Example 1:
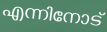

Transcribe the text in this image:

എന്നിനോട്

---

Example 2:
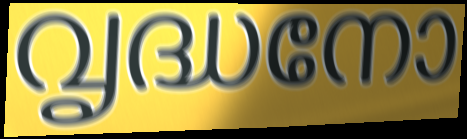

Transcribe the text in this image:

വൃദ്ധനോ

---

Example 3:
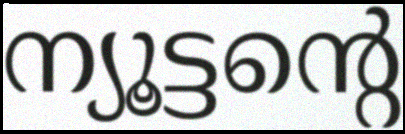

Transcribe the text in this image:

ന്യൂട്ടന്റെ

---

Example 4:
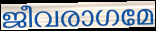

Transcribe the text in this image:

ജീവരാഗമേ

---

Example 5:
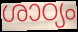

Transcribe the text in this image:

ശാഠ്യം